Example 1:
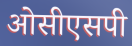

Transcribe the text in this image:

ओसीएसपी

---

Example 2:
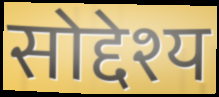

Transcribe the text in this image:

सोद्देश्य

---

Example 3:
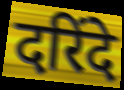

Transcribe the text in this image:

दरिंदे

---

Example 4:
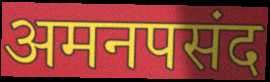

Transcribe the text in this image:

अमनपसंद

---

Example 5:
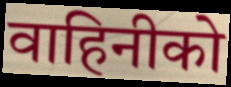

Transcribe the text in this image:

वाहिनीको